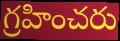
గ్రహించరు